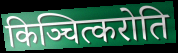
किञ्चित्करोति